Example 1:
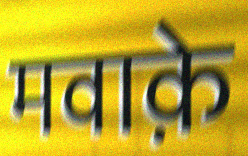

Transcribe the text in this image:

मवाक़े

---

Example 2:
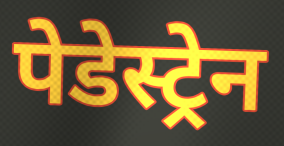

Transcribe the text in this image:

पेडेस्ट्रेन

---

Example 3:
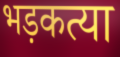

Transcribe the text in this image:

भड़कत्या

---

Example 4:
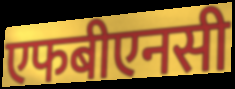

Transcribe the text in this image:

एफबीएनसी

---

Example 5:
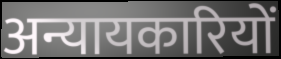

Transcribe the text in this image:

अन्यायकारियों